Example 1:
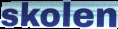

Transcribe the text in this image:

skolen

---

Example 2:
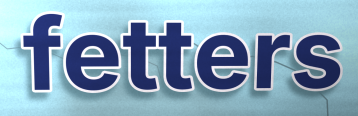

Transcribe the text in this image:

fetters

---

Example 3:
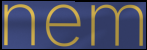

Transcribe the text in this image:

nem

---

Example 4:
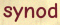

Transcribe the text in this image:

synod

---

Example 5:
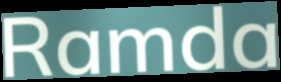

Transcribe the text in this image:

Ramda